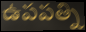
ఉపపత్ని